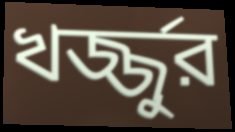
খর্জ্জুর